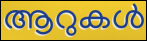
ആറുകൾ